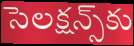
సెలక్షన్స్‌కు